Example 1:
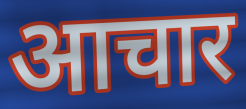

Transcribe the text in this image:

आचार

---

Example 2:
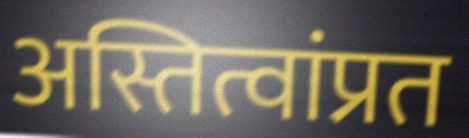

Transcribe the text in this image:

अस्तित्वांप्रत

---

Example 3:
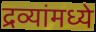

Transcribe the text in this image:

द्रव्यांमध्ये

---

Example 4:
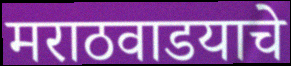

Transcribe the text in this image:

मराठवाडयाचे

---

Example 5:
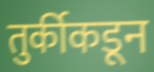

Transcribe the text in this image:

तुर्कीकडून